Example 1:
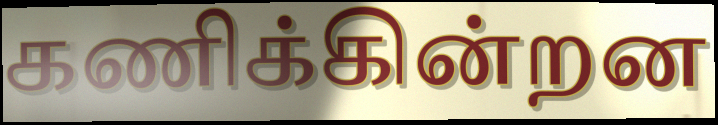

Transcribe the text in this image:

கணிக்கின்றன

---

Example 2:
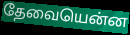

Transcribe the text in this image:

தேவையென்ன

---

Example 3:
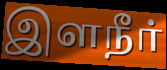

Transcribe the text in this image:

இளநீர்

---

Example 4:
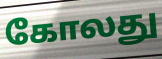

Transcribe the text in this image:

கோலது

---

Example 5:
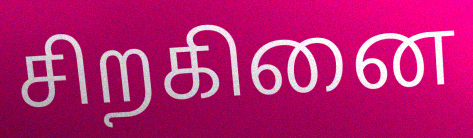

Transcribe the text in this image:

சிறகினை